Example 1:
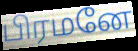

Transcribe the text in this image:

பிரமனே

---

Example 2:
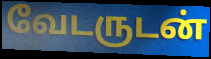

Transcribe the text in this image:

வேடருடன்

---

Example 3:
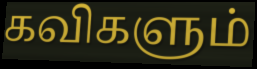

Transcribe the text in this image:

கவிகளும்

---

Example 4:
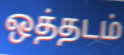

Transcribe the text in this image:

ஒத்தடம்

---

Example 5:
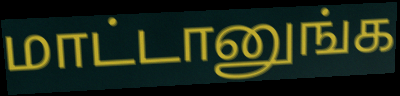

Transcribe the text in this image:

மாட்டானுங்க